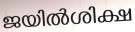
ജയിൽശിക്ഷ